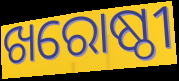
ଖରୋଷ୍ଠୀ